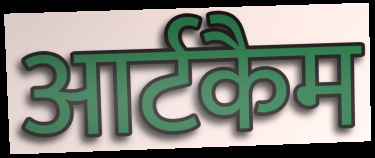
आर्टकैम